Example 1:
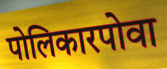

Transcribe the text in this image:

पोलिकारपोवा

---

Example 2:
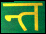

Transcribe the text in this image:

न्त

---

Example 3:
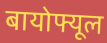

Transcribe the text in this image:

बायोफ्यूल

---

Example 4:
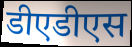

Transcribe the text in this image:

डीएडीएस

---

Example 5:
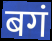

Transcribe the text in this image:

बगं